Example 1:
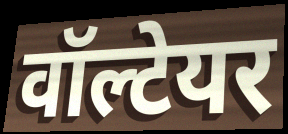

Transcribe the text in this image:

वॉल्टेयर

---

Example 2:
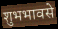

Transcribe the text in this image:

शुभभावसे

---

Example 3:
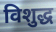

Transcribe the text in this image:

विशुद्ध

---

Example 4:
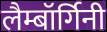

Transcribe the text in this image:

लैम्बॉर्गिनी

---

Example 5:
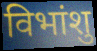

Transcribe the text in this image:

विभांशु